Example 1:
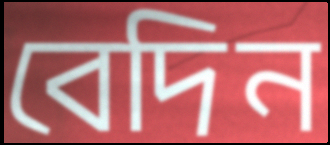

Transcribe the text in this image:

বেদিন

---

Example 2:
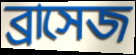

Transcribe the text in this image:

ব্রাসেজ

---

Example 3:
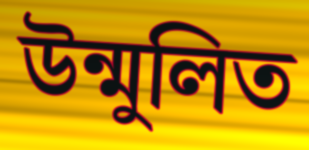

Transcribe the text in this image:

উন্মুলিত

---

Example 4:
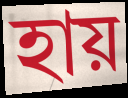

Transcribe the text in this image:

হায়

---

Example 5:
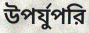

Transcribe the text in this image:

উপর্যুপরি